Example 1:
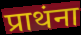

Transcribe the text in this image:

प्राथंना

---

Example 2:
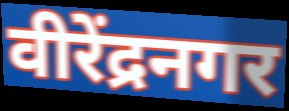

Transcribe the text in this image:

वीरेंद्रनगर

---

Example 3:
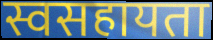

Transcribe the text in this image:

स्वसहायता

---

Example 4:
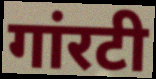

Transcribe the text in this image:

गांरटी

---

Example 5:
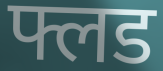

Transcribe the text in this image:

फ्लड